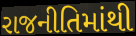
રાજનીતિમાંથી